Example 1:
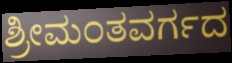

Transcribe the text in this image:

ಶ್ರೀಮಂತವರ್ಗದ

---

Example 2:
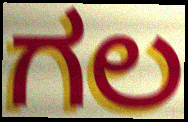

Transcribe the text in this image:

ಗಲ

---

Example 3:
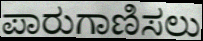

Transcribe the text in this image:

ಪಾರುಗಾಣಿಸಲು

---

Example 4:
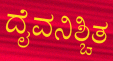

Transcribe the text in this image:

ದೈವನಿಶ್ಚಿತ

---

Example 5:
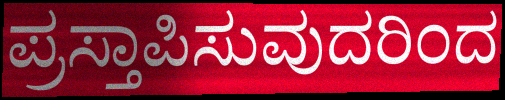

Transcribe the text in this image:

ಪ್ರಸ್ತಾಪಿಸುವುದರಿಂದ